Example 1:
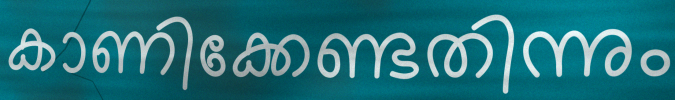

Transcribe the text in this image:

കാണിക്കേണ്ടതിന്നും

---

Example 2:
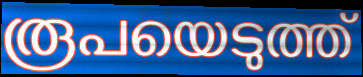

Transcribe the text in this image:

രൂപയെടുത്ത്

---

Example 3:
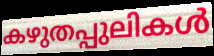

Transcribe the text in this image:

കഴുതപ്പുലികൾ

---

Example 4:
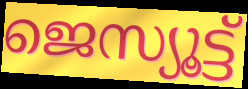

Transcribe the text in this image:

ജെസ്യൂട്ട്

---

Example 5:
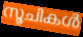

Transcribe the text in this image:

സൂചികൾ